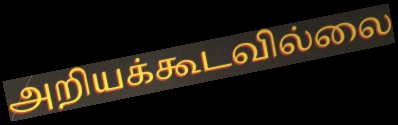
அறியக்கூடவில்லை